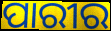
ପାରୀର